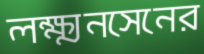
লক্ষ্মনসেনের